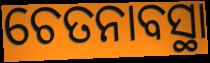
ଚେତନାବସ୍ଥା